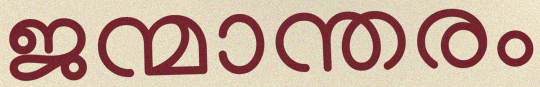
ജന്മാന്തരം